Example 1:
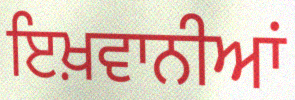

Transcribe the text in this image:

ਇਖ਼ਵਾਨੀਆਂ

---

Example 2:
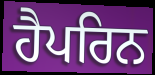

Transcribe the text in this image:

ਹੈਪਰਿਨ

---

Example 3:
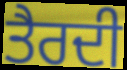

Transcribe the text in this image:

ਤੈਰਦੀ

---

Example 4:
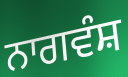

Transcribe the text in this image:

ਨਾਗਵੰਸ਼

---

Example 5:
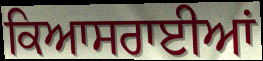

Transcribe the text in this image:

ਕਿਆਸਰਾਈਆਂ